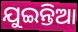
ଯୁଇନ୍ତିଆ